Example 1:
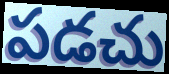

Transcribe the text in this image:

పడచు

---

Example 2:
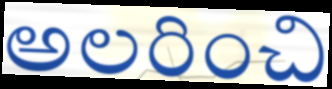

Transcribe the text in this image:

అలరించి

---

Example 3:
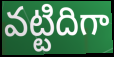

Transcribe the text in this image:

వట్టిదిగా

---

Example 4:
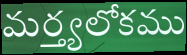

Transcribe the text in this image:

మర్త్యలోకము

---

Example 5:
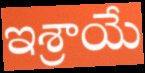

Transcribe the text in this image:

ఇశ్రాయే